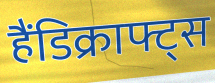
हैंडिक्राफ्ट्स